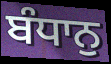
ਬੰਧਾਨੁ